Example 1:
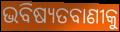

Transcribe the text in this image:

ଭବିଷ୍ୟତବାଣୀକୁ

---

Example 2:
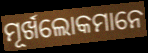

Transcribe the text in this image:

ମୂର୍ଖଲୋକମାନେ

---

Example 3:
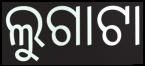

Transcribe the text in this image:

ଲୁଗାଟା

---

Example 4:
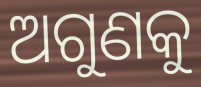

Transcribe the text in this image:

ଅଗୁଣକୁ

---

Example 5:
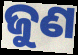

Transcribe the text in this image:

ଜୁଣ